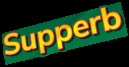
Supperb